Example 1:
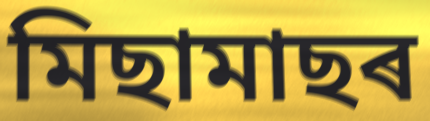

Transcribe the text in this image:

মিছামাছৰ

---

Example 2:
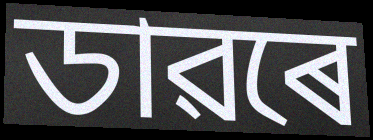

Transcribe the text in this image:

ডাৱৰে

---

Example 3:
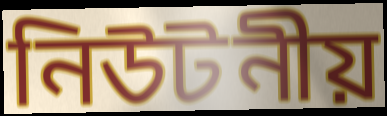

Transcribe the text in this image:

নিউটনীয়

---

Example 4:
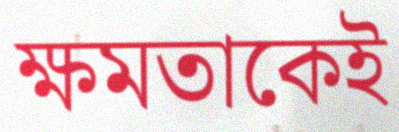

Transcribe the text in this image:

ক্ষমতাকেই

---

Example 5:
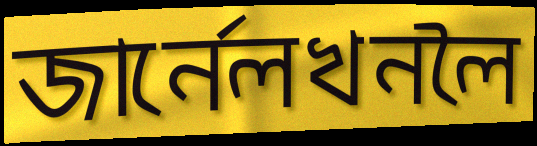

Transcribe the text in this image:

জাৰ্নেলখনলৈ